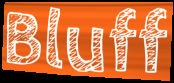
Bluff